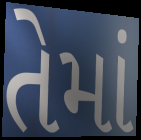
તેમાં